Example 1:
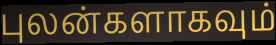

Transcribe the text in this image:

புலன்களாகவும்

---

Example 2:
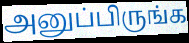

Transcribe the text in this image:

அனுப்பிருங்க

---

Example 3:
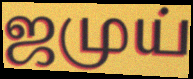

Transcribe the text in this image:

ஜமுய்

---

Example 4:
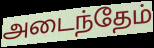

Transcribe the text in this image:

அடைந்தேம்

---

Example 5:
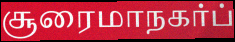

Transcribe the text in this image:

சூரைமாநகர்ப்